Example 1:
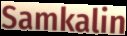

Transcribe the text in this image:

Samkalin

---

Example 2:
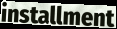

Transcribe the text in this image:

installment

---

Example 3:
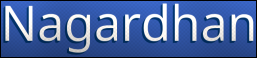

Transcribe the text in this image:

Nagardhan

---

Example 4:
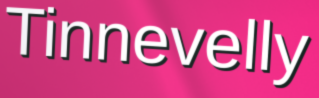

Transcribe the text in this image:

Tinnevelly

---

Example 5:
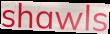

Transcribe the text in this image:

shawls